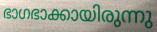
ഭാഗഭാക്കായിരുന്നു